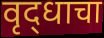
वृद्धाचा